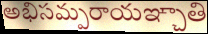
అభిసమ్పరాయఞ్చాతి